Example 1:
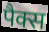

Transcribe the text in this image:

पैक्स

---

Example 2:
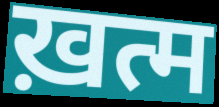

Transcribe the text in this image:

ख़त्म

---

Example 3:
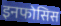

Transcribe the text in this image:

इनफोसिस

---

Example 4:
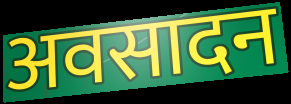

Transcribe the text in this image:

अवसादन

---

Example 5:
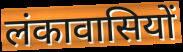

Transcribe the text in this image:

लंकावासियों